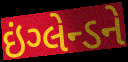
ઇંગ્લેન્ડને